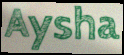
Aysha